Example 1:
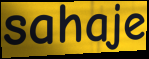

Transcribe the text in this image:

sahaje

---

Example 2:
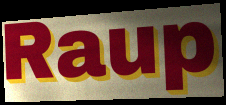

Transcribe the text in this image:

Raup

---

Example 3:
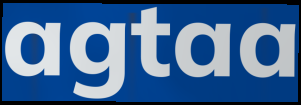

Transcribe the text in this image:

agtaa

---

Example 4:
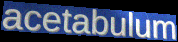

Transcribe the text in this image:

acetabulum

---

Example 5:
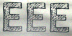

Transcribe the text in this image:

EEE